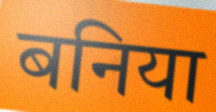
बनिया